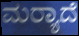
ಮರ‍್ಯಾದೆ